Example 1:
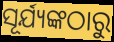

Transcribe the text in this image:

ସୂର୍ଯ୍ୟଙ୍କଠାରୁ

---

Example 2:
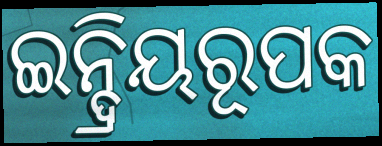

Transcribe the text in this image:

ଇନ୍ଦ୍ରିୟରୂପକ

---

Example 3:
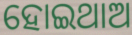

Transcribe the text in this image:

ହୋଇଥାଅ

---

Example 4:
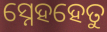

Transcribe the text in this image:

ସ୍ନେହହେତୁ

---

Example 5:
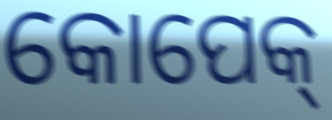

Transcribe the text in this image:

କୋପେକ୍